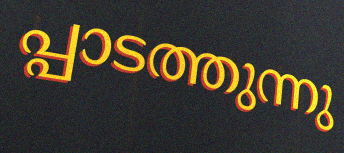
പ്പാടത്തുന്നു